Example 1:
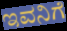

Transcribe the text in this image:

ಇವನಿಗೆ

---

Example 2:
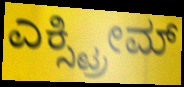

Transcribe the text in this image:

ಎಕ್ಸ್ಟ್ರೀಮ್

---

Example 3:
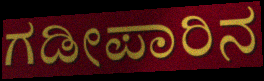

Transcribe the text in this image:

ಗಡೀಪಾರಿನ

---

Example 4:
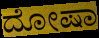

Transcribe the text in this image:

ದೋಷಾ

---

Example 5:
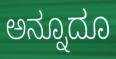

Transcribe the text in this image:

ಅನ್ನೂದೂ